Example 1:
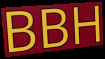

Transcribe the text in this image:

BBH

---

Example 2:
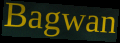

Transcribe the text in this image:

Bagwan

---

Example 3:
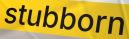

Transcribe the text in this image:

stubborn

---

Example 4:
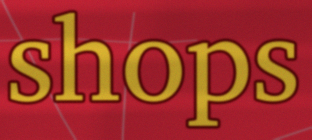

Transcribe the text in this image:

shops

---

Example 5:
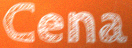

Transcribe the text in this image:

Cena